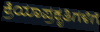
ಕ್ರಿಯಾಪ್ರಕೃತಿಗಳಿಗೆ